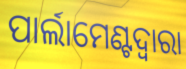
ପାର୍ଲାମେଣ୍ଟଦ୍ୱାରା